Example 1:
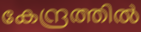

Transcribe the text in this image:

കേന്ദ്രത്തിൽ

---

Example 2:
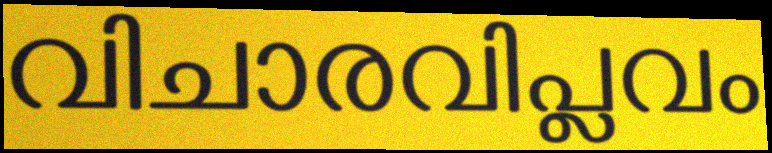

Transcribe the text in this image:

വിചാരവിപ്ലവം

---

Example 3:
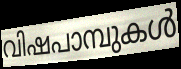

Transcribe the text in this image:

വിഷപാമ്പുകൾ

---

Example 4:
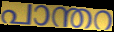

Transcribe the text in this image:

പാന്തറ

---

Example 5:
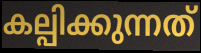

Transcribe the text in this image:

കല്പിക്കുന്നത്